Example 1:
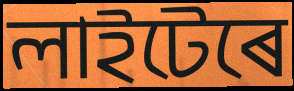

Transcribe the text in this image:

লাইটেৰে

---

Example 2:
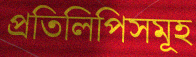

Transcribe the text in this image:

প্ৰতিলিপিসমূহ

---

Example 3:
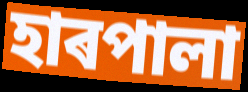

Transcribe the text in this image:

হাৰপালা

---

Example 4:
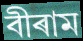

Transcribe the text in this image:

বীৰাম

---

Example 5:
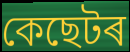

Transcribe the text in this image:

কেছেটৰ